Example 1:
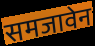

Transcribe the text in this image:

समजावेन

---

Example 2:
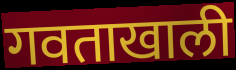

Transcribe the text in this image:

गवताखाली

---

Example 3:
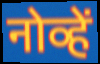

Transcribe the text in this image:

नोव्हें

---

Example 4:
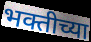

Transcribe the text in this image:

भक्तीच्या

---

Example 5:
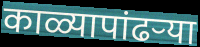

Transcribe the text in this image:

काळ्यापांढऱ्या